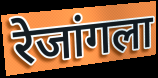
रेजांगला